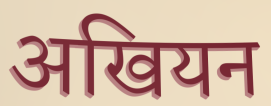
अखियन